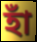
হাঁ